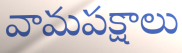
వామపక్షాలు